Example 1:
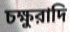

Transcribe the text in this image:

চক্ষুরাদি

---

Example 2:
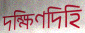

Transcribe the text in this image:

দক্ষিণদিহি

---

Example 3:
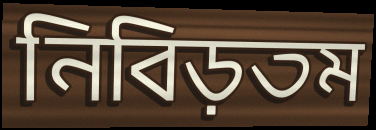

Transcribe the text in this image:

নিবিড়তম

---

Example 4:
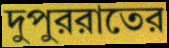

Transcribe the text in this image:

দুপুররাতের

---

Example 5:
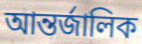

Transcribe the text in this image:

আন্তর্জালিক